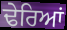
ਢੇਰਿਆਂ